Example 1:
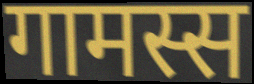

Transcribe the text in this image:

गामस्स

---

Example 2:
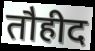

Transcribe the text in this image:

तौहीद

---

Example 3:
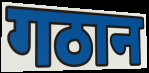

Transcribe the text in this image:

गठान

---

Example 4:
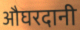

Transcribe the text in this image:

औघरदानी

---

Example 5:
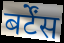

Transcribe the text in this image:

बर्टेंस